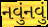
નવુંનવું